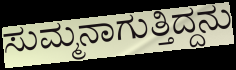
ಸುಮ್ಮನಾಗುತ್ತಿದ್ದನು